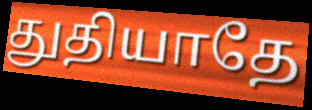
துதியாதே